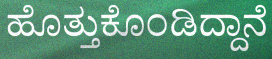
ಹೊತ್ತುಕೊಂಡಿದ್ದಾನೆ